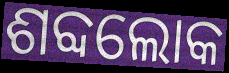
ଶବ୍ଦଲୋକ